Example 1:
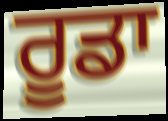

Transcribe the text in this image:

ਰੂਡਾ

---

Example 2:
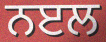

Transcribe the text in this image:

ਨੲਲ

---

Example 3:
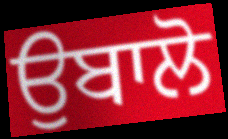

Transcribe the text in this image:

ਉਬਾਲੋ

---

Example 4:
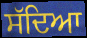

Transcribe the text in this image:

ਸੱਦਿਆ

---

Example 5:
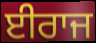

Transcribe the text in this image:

ਈਰਾਜ